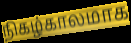
நிகழ்காலமாக